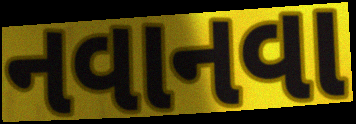
નવાનવા